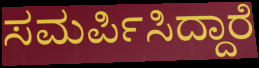
ಸಮರ್ಪಿಸಿದ್ದಾರೆ